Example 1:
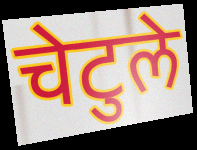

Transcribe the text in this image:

चेटुले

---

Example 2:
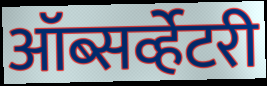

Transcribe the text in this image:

ऑब्सर्व्हेटरी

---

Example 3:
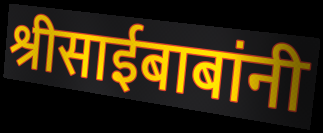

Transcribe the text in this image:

श्रीसाईबाबांनी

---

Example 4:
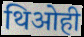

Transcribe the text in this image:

थिओही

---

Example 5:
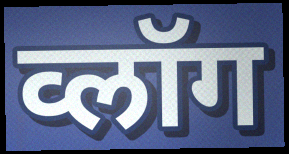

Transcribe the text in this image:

व्लॉग